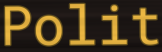
Polit